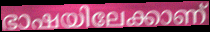
ഭാഷയിലേക്കാണ്